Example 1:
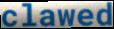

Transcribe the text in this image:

clawed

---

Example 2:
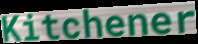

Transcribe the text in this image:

Kitchener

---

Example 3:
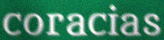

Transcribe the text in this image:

coracias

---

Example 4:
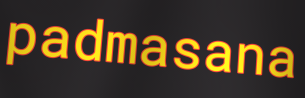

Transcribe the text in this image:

padmasana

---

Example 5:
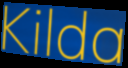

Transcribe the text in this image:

Kilda